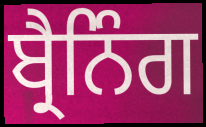
ਬ੍ਰੈਨਿੰਗ